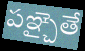
పఞ్చైతే